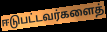
ஈடுபட்டவர்களைத்